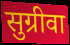
सुग्रीवा